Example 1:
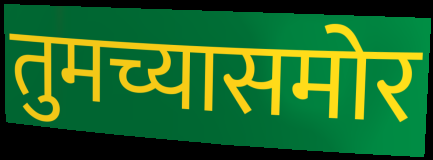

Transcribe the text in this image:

तुमच्यासमोर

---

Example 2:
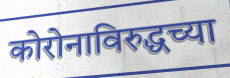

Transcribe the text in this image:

कोरोनाविरुद्धच्या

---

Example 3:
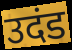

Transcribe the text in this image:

उदंड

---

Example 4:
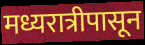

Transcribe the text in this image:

मध्यरात्रीपासून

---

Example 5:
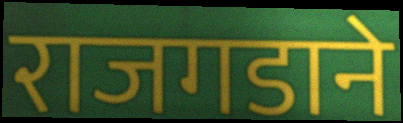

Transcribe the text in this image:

राजगडाने